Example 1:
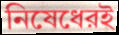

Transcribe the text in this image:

নিষেধেরই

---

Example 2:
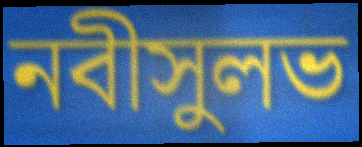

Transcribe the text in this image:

নবীসুলভ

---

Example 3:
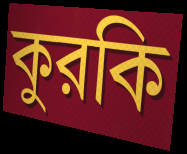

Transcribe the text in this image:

কুরকি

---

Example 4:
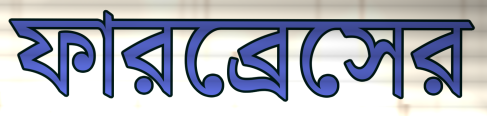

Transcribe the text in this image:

ফারব্রেসের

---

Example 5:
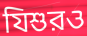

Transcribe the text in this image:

যিশুরও